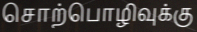
சொற்பொழிவுக்கு